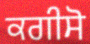
ਕਗੀਸੋ